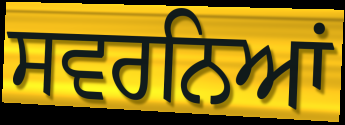
ਸਵਰਨਿਆਂ